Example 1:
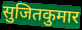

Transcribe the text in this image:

सुजितकुमार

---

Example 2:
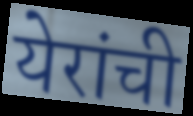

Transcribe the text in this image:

येरांची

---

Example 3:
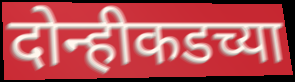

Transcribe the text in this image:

दोन्हीकडच्या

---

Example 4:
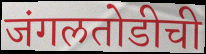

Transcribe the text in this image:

जंगलतोडीची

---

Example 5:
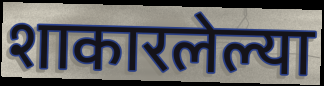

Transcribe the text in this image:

शाकारलेल्या